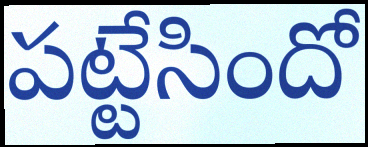
పట్టేసిందో